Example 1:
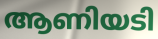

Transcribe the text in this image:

ആണിയടി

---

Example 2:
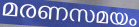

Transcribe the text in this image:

മരണസമയം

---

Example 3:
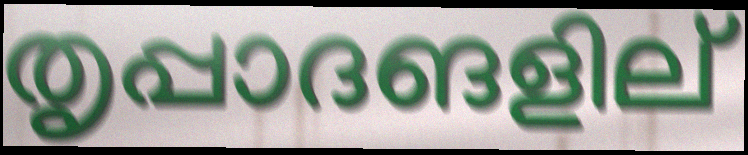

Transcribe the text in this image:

തൃപ്പാദങളില്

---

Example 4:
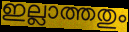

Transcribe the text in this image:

ഇല്ലാത്തതും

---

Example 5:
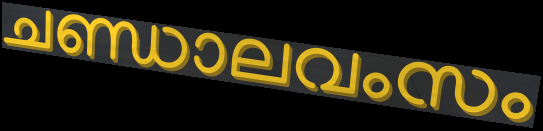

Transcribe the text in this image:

ചണ്ഡാലവംസം